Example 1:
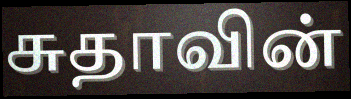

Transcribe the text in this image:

சுதாவின்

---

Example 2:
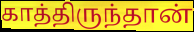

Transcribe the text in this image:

காத்திருந்தான்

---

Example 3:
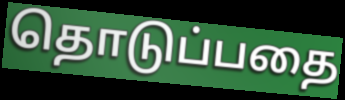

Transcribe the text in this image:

தொடுப்பதை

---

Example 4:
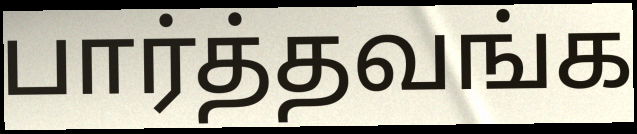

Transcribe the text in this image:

பார்த்தவங்க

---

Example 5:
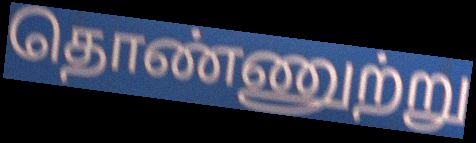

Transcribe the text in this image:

தொண்ணுற்று